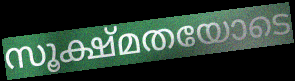
സൂക്ഷ്മതയോടെ